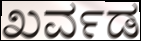
ಖರ್ವಡ